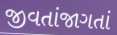
જીવતાંજાગતાં